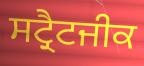
ਸਟ੍ਰੈਟਜੀਕ